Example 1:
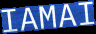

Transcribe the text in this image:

IAMAI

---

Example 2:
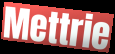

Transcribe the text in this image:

Mettrie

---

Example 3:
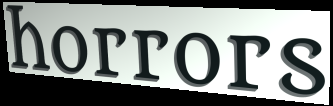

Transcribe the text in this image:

horrors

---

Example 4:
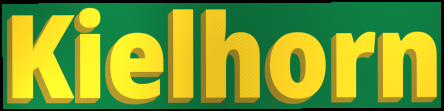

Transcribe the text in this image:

Kielhorn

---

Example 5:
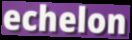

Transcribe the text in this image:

echelon